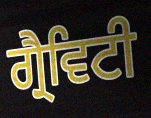
ਗ੍ਰੈਵਿਟੀ